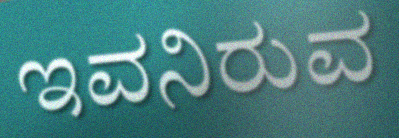
ಇವನಿರುವ